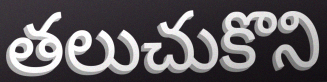
తలుచుకొని